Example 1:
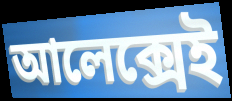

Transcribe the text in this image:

আলেক্সেই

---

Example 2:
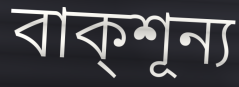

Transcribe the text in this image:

বাক্শূন্য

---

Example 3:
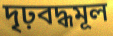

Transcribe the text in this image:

দৃঢ়বদ্ধমূল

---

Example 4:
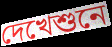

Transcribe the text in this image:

দেখেশুনে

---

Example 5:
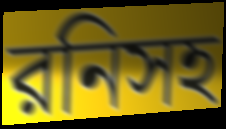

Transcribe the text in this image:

রনিসহ